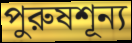
পুরুষশূন্য